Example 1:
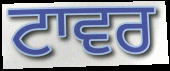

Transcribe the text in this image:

ਟਾਵਰ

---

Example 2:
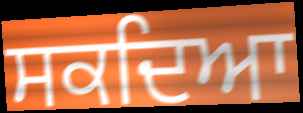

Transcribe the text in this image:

ਸਕਦਿਆ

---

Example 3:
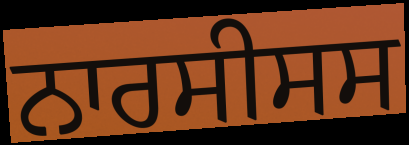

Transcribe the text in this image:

ਨਾਰਸੀਸਸ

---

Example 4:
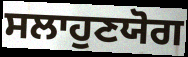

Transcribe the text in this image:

ਸਲਾਹੁਣਯੋਗ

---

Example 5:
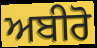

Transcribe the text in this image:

ਅਬੀਰੋ